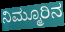
ನಿಮ್ಮೂರಿನ